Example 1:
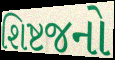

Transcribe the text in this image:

શિષ્ટજનો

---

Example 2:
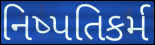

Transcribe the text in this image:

નિષ્પતિકર્મ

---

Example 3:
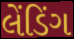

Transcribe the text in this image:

લેંડિંગ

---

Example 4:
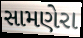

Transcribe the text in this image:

સામણેરા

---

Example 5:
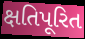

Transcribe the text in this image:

ક્ષતિપૂરિત